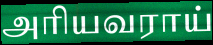
அரியவராய்